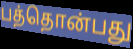
பத்தொன்பது